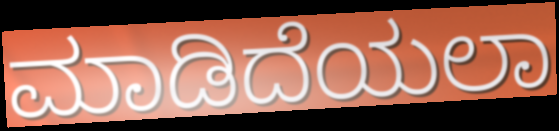
ಮಾಡಿದೆಯಲಾ